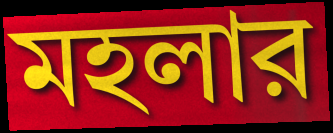
মহলার